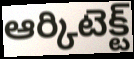
ఆర్కిటెక్ట్